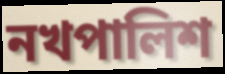
নখপালিশ